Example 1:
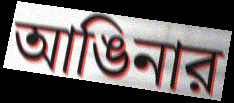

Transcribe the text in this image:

আঙিনার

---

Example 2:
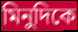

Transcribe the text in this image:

মিনুদিকে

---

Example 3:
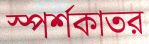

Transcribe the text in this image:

স্পর্শকাতর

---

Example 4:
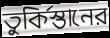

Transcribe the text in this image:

তুর্কিস্তানের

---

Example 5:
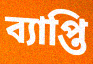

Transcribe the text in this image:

ব্যাপ্তি